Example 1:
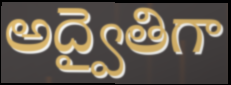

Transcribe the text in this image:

అద్వైతిగా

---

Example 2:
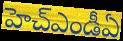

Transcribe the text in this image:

హెచ్ఎండీఏ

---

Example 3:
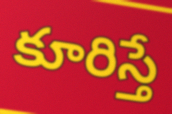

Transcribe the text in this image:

కూరిస్తే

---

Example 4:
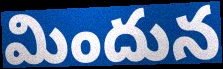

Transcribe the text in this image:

మిందున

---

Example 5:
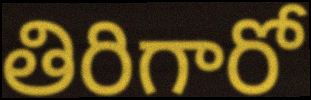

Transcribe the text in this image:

తిరిగారో